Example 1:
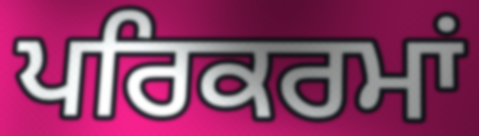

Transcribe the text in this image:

ਪਰਿਕਰਮਾਂ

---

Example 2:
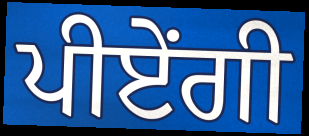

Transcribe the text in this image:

ਪੀਏਂਗੀ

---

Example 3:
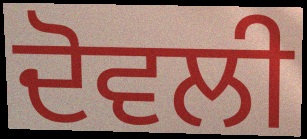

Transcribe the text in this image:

ਦੋਵਲੀ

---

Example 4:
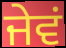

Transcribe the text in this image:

ਜੇਵਂ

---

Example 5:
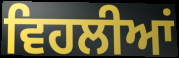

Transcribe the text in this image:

ਵਿਹਲੀਆਂ